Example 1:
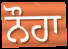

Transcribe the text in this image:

ਨੌਹਾ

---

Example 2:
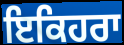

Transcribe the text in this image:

ਇਕਿਹਰਾ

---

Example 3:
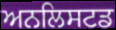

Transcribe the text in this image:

ਅਨਲਿਸਟਡ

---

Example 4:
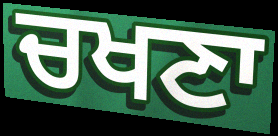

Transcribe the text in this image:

ਚਖਣਾ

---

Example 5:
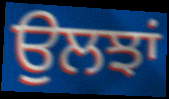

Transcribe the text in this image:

ਉਲਝਾਂ